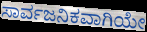
ಸಾರ್ವಜನಿಕವಾಗಿಯೇ